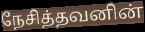
நேசித்தவனின்